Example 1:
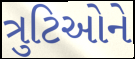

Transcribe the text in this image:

ત્રુટિઓને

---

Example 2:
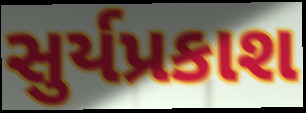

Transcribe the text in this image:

સુર્યપ્રકાશ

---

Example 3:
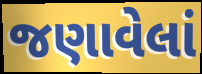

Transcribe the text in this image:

જણાવેલાં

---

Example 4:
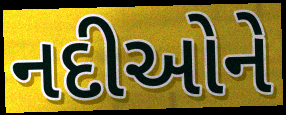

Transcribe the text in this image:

નદીઓને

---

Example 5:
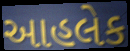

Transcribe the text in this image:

આહલેક